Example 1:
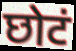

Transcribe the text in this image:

छोटं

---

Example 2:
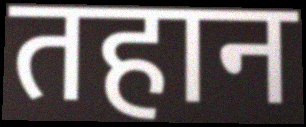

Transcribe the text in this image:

तहान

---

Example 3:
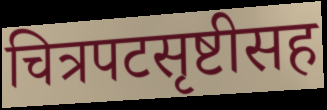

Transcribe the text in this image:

चित्रपटसृष्टीसह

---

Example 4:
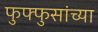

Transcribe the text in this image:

फुफ्फुसांच्या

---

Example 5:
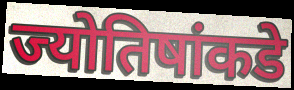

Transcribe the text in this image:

ज्योतिषांकडे